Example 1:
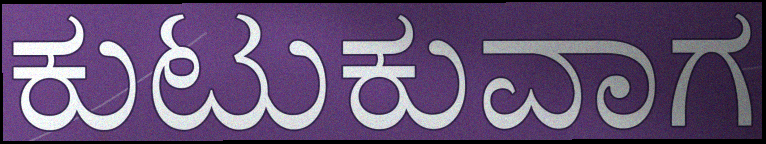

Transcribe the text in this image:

ಕುಟುಕುವಾಗ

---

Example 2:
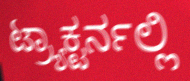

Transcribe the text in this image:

ಟ್ರ್ಯಾಕ್ಟರ್ನಲ್ಲಿ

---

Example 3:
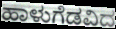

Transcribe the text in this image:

ಹಾಳುಗೆಡವಿದ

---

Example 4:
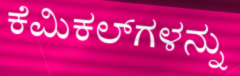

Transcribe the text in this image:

ಕೆಮಿಕಲ್‌ಗಳನ್ನು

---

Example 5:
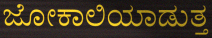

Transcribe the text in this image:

ಜೋಕಾಲಿಯಾಡುತ್ತ